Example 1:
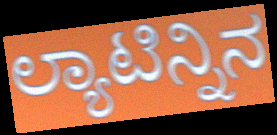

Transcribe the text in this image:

ಲ್ಯಾಟಿನ್ನಿನ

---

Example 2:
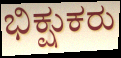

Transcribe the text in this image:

ಭಿಕ್ಷುಕರು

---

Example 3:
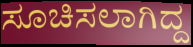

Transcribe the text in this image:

ಸೂಚಿಸಲಾಗಿದ್ದ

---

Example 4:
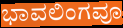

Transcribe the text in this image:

ಭಾವಲಿಂಗವೂ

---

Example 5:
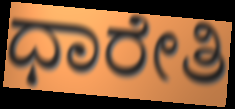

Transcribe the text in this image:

ಧಾರೇತಿ